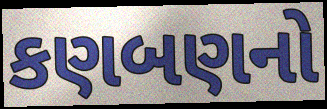
કણબણનો